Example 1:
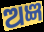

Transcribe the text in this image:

ଅଜ୍ଞ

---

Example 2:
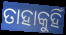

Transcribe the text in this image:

ତାହାକୁହିଁ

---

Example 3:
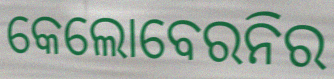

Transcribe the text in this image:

କେଲୋବେରନିର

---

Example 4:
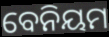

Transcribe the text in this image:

ବେନିୟମ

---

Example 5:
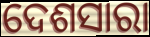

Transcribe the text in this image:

ଦେଶସାରା